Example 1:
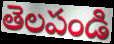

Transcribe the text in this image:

తెలపండి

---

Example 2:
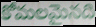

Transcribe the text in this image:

కోమలమైనది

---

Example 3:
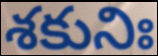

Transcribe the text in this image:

శకునిః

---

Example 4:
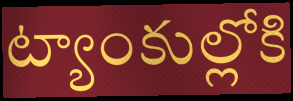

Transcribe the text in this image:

ట్యాంకుల్లోకి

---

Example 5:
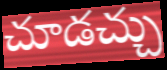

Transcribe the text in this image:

చూడచ్చు